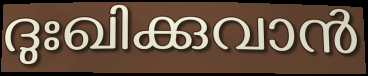
ദുഃഖിക്കുവാൻ